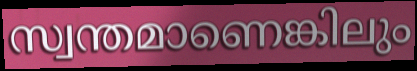
സ്വന്തമാണെങ്കിലും